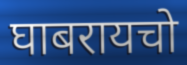
घाबरायचो